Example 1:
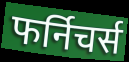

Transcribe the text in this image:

फर्निचर्स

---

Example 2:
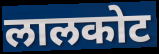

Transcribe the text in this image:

लालकोट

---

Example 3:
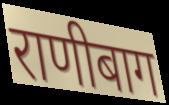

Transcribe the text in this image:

राणीबाग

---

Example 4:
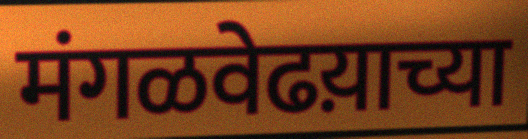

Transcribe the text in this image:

मंगळवेढय़ाच्या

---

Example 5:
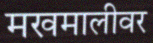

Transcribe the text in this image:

मखमालीवर